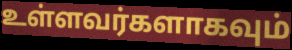
உள்ளவர்களாகவும்